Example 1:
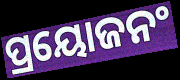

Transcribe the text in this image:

ପ୍ରୟୋଜନଂ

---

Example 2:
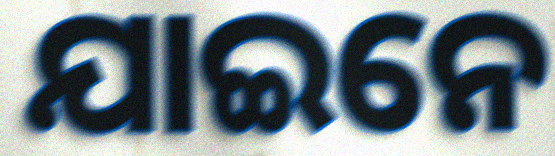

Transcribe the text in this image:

ଯାଇନେ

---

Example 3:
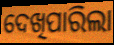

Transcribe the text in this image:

ଦେଖିପାରିଲା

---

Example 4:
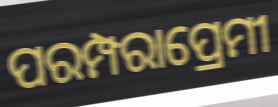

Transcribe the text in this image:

ପରମ୍ପରାପ୍ରେମୀ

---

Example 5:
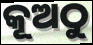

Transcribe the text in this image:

କୂଅଠୁ